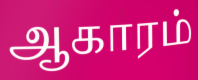
ஆகாரம்